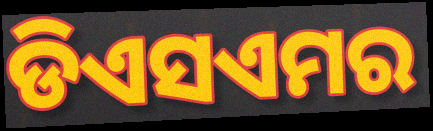
ଡିଏସଏମର